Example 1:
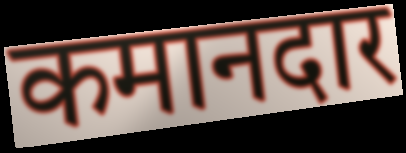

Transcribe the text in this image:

कमानदार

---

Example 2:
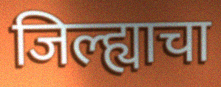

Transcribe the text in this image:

जिल्ह्याचा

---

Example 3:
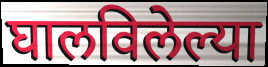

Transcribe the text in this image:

घालविलेल्या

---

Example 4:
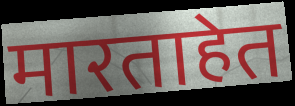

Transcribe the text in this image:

मारताहेत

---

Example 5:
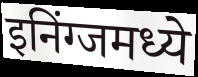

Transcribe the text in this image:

इनिंग्जमध्ये